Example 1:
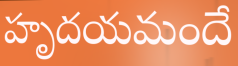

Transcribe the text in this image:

హృదయమందే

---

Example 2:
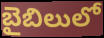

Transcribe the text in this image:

బైబిలులో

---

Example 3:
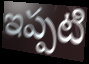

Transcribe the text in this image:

ఇప్పటి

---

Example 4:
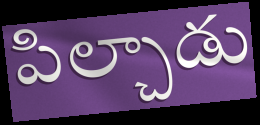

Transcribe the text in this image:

పిల్చాడు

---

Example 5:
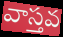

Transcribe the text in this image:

వాస్తవ